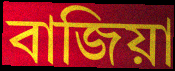
বাজিয়া